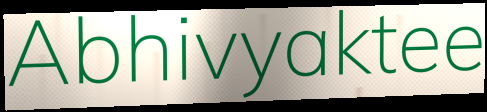
Abhivyaktee